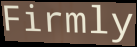
Firmly